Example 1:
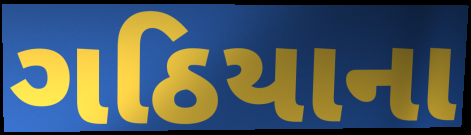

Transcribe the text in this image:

ગઠિયાના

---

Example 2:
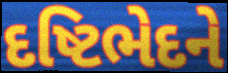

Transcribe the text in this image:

દષ્ટિભેદને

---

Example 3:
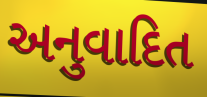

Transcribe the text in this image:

અનુવાદિત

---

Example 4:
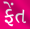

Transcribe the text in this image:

ફેંત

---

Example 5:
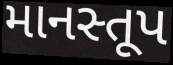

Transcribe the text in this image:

માનસ્તૂપ